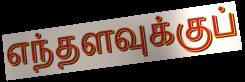
எந்தளவுக்குப்